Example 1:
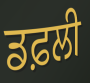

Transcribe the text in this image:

ਡਫ਼ਲੀ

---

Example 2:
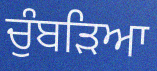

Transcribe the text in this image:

ਚੁੰਬੜਿਆ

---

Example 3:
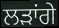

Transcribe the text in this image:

ਲੜਾਂਗੇ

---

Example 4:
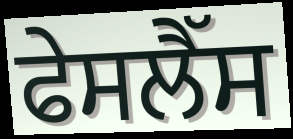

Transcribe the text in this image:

ਫੇਸਲੈੱਸ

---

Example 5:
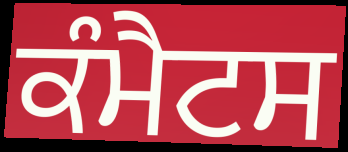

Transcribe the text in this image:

ਕੰਮੈਟਸ